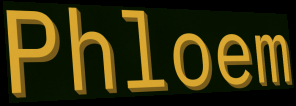
Phloem